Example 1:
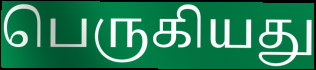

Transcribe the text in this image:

பெருகியது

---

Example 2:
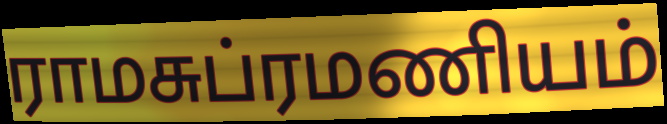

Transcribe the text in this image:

ராமசுப்ரமணியம்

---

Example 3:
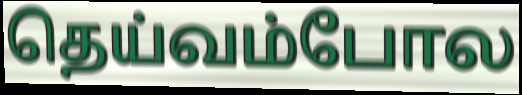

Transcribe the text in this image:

தெய்வம்போல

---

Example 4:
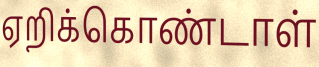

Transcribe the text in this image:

ஏறிக்கொண்டாள்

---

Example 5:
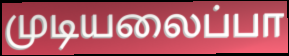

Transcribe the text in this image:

முடியலைப்பா